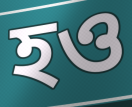
হও